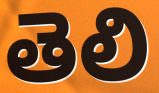
తెలి